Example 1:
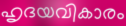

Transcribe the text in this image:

ഹൃദയവികാരം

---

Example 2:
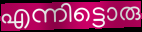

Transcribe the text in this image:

എന്നിട്ടൊരു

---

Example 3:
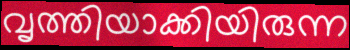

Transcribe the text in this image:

വൃത്തിയാക്കിയിരുന്ന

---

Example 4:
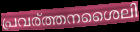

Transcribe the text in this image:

പ്രവര്ത്തനശൈലി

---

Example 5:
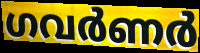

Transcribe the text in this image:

ഗവർണർ